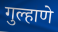
गुल्हाणे